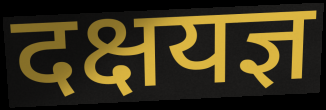
दक्षयज्ञ